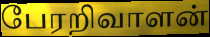
பேரறிவாளன்